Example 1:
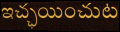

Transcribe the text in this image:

ఇచ్ఛయించుట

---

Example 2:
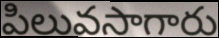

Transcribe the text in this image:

పిలువసాగారు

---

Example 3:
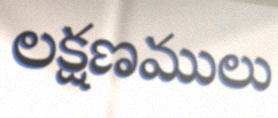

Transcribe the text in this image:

లక్షణములు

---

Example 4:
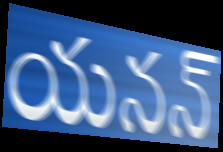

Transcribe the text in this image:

యనన్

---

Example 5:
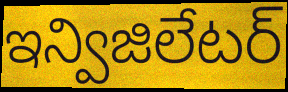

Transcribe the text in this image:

ఇన్విజిలేటర్